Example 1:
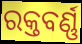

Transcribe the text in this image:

ରକ୍ତବର୍ଣ୍ଣ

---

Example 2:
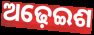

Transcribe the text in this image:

ଅଢ଼େଇଶ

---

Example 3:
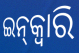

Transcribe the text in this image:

ଇନ୍‌କ୍ଵାରି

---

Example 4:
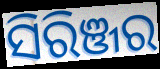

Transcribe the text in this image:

ସିରିଞ୍ଜର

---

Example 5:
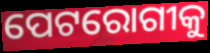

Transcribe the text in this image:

ପେଟରୋଗୀକୁ